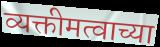
व्यक्तीमत्वाच्या